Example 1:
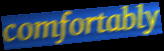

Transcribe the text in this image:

comfortably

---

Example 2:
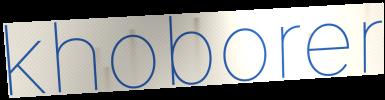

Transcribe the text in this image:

khoborer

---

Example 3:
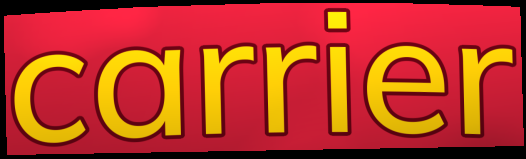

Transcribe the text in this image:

carrier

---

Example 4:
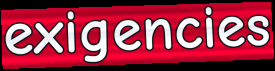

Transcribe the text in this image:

exigencies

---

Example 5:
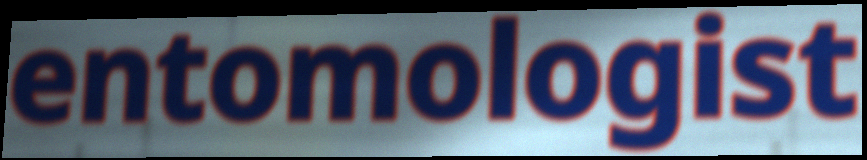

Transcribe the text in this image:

entomologist